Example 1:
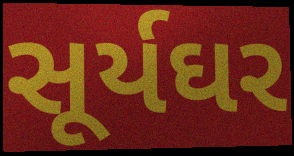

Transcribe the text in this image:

સૂર્યઘર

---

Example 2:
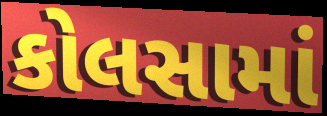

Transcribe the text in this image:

કોલસામાં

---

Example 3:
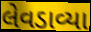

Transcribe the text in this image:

લેવડાવ્યા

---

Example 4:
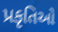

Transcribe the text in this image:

પ્રકૃતિઓ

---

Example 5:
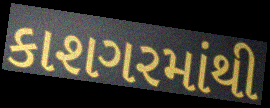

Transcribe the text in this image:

કાશગરમાંથી